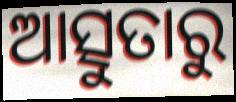
ଆତ୍ସୁତାରୁ